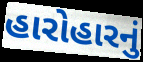
હારોહારનું